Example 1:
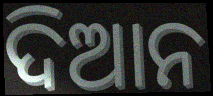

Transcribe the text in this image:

ଦିଆନ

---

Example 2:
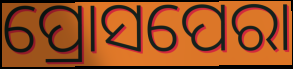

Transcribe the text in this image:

ପ୍ରୋସପେରା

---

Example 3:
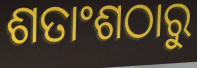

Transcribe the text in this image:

ଶତାଂଶଠାରୁ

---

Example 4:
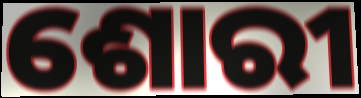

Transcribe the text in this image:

ଶୋରୀ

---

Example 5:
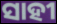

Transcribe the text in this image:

ସାହୀ